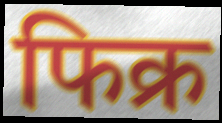
फिक्र